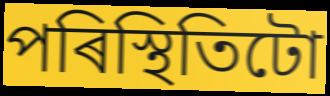
পৰিস্থিতিটো